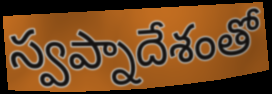
స్వప్నాదేశంతో